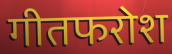
गीतफरोश